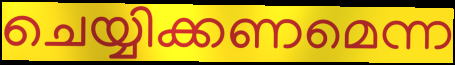
ചെയ്യിക്കണമെന്ന